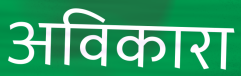
अविकारा